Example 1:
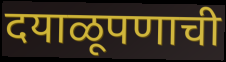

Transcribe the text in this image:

दयाळूपणाची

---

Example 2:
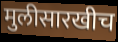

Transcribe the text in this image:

मुलीसारखीच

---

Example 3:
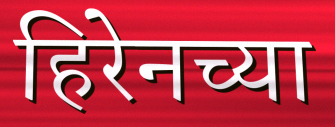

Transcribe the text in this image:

हिरेनच्या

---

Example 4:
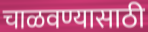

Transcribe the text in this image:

चाळवण्यासाठी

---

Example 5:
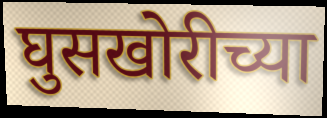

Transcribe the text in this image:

घुसखोरीच्या